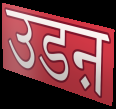
उडऩ